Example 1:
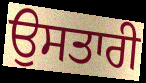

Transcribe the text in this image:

ਉਸਤਾਰੀ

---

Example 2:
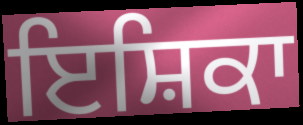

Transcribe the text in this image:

ਇਸ਼ਿਕਾ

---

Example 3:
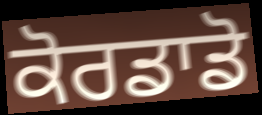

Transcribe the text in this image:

ਕੋਰਡਾਡੋ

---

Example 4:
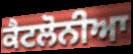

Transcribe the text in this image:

ਕੈਟਲੋਨੀਆ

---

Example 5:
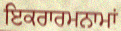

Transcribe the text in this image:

ਇਕਰਾਰਮਨਾਮਾਂ